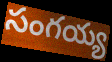
సంగయ్య